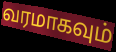
வரமாகவும்